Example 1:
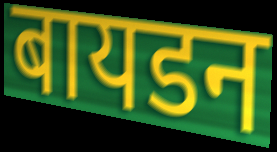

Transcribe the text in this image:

बायडन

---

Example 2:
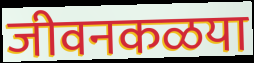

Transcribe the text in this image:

जीवनकळया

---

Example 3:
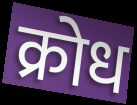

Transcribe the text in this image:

क्रोध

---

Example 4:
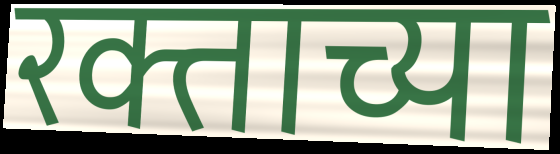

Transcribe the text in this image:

रक्ताच्या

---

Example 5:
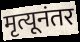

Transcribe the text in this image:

मृत्यूनंतर